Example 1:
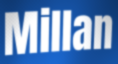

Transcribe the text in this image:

Millan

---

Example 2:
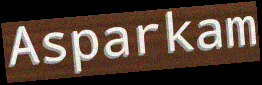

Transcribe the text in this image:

Asparkam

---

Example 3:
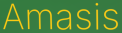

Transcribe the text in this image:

Amasis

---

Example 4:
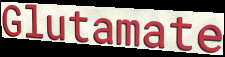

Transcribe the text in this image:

Glutamate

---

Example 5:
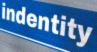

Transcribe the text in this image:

indentity